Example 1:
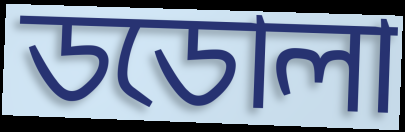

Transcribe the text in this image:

ডডোলা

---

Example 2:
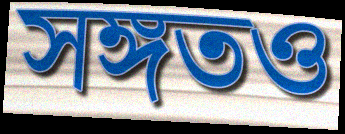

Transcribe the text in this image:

সঙ্গতও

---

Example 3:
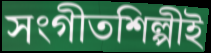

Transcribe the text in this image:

সংগীতশিল্পীই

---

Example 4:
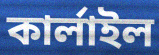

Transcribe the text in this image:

কার্লাইল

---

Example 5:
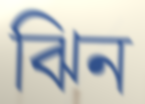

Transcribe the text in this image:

ঝিন